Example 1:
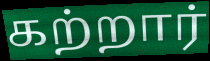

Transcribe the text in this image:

கற்றார்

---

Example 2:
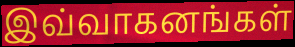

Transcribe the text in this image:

இவ்வாகனங்கள்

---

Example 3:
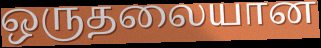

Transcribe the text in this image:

ஒருதலையான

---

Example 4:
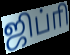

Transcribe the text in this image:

ஜிப்ரி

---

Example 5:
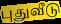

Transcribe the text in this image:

புதுவீடு